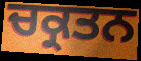
ਚਕ੍ਰਤਨ